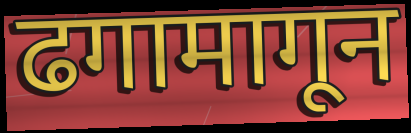
ढगामागून